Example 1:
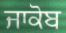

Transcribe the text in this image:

ਜਾਕੋਬ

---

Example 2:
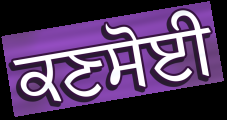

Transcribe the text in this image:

ਕਣਸੋਈ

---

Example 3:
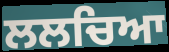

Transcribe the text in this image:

ਲਲਚਿਆ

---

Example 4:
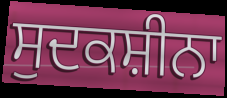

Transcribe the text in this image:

ਸੁਦਕਸ਼ੀਨਾ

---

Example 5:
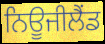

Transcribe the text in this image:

ਨਿਊਜੀਲੈਂਡ